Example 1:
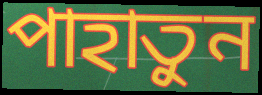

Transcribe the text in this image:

পাহাতুন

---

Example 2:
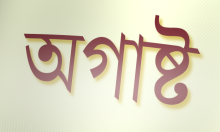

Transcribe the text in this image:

অগাষ্ট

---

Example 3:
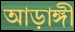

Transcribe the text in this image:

আড়াঙ্গী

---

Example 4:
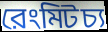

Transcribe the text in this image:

রেংমিটচ্য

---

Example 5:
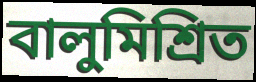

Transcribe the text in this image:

বালুমিশ্রিত